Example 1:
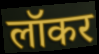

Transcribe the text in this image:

लॉकर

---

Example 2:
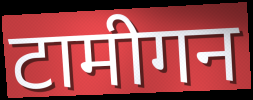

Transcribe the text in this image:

टामीगन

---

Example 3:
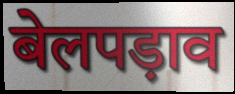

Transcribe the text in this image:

बेलपड़ाव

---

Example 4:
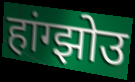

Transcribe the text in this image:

हांग्झोउ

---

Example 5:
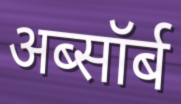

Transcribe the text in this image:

अब्सॉर्ब